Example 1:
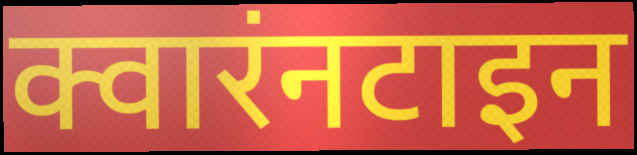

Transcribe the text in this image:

क्वारंनटाइन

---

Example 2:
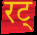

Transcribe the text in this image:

रट्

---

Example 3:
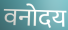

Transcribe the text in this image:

वनोदय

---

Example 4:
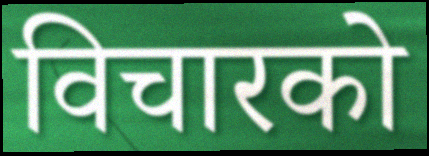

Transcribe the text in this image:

विचारको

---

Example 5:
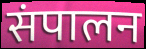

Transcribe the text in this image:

संपालन